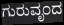
ಗುರುವೃಂದ